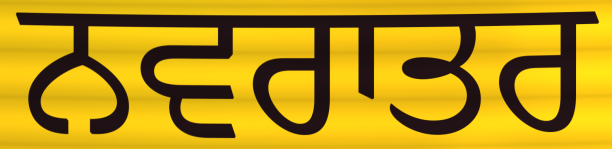
ਨਵਰਾਤਰ